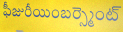
ఫీజురీయింబర్స్మెంట్